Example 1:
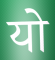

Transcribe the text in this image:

यो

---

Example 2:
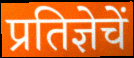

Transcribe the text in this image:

प्रतिज्ञेचें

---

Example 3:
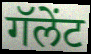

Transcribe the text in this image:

गॅलेंट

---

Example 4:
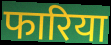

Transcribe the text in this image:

फारिया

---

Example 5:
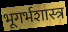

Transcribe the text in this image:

भूगर्भशास्त्र